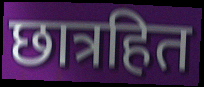
छात्रहित